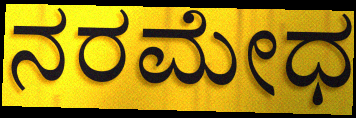
ನರಮೇಧ